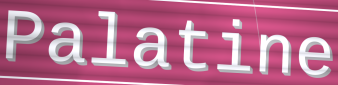
Palatine